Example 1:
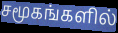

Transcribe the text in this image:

சமூகங்களில்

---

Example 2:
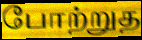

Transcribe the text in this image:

போற்றுத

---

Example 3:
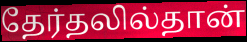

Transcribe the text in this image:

தேர்தலில்தான்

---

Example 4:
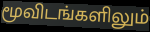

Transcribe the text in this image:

மூவிடங்களிலும்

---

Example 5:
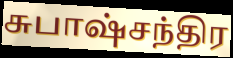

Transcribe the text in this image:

சுபாஷ்சந்திர